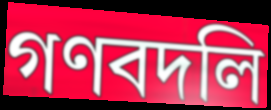
গণবদলি